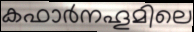
കഫാർനഹൂമിലെ